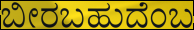
ಬೀರಬಹುದೆಂಬ